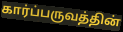
கார்ப்பருவத்தின்